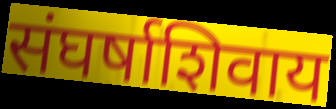
संघर्षाशिवाय